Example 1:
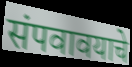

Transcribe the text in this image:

संपवावयाचे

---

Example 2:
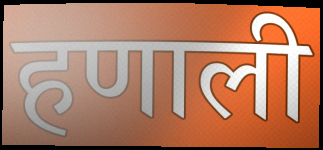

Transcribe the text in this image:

हणाली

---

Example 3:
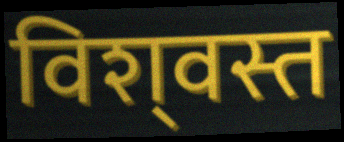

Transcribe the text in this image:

विश्वस्त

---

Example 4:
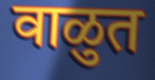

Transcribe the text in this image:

वाळुत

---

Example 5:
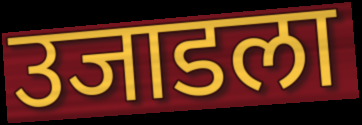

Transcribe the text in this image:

उजाडला